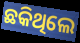
ଛକିଥିଲେ